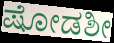
ಷೋಡಶೀ